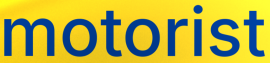
motorist